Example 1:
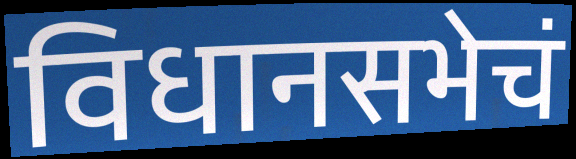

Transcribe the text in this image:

विधानसभेचं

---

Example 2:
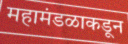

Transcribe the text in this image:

महामंडळाकडून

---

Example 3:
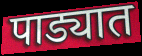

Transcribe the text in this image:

पाड्यात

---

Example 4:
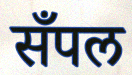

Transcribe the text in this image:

सँपल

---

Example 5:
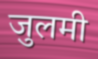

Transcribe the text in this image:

जुलमी